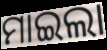
ମାଇଲା